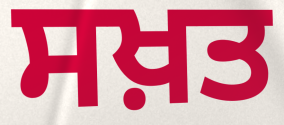
ਸਖ਼ਤ